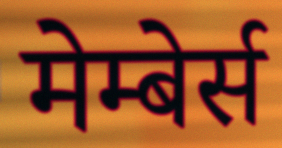
मेम्बेर्स